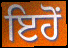
ਇਹੋਂ